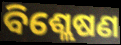
ବିଶ୍ଲେଷଣ